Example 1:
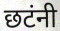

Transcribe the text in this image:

छटंनी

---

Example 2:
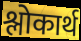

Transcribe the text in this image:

श्लोकार्थ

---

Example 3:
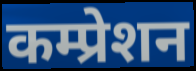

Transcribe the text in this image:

कम्प्रेशन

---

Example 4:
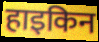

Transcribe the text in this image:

हाइकिन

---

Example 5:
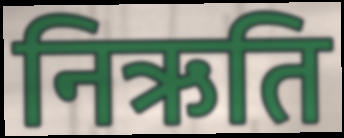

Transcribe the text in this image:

निऋति